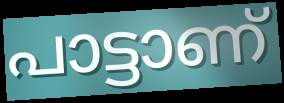
പാട്ടാണ്